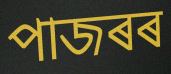
পাজৰৰ